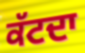
ਕੱਟਦਾ